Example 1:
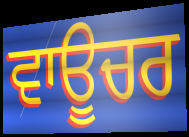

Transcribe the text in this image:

ਵਾਊਚਰ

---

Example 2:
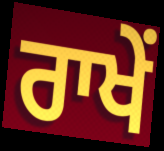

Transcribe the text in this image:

ਰਾਖੇਂ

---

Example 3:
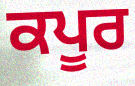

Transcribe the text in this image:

ਕਪੂਰ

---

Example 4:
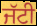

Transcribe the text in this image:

ਜੱਟੀ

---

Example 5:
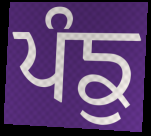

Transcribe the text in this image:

ਪੰਙੁ